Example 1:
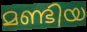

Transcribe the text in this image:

മണ്ടിയ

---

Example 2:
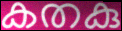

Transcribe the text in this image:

കതകു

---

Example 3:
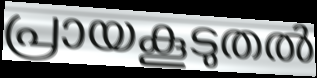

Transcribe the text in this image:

പ്രായകൂടുതൽ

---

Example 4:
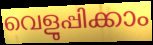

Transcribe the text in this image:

വെളുപ്പിക്കാം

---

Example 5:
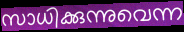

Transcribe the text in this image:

സാധിക്കുന്നുവെന്ന